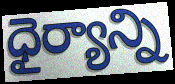
ధైర్యాన్ని